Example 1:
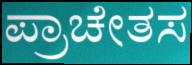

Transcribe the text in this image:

ಪ್ರಾಚೇತಸ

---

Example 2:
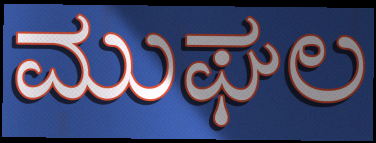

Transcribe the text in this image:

ಮುಘಲ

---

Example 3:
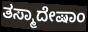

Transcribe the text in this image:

ತಸ್ಮಾದೇಷಾಂ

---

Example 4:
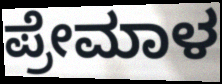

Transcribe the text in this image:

ಪ್ರೇಮಾಳ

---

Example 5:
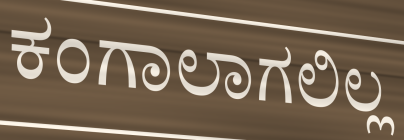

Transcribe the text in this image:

ಕಂಗಾಲಾಗಲಿಲ್ಲ